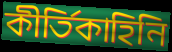
কীর্তিকাহিনি